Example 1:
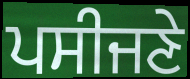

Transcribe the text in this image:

ਪਸੀਜਣੇ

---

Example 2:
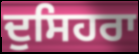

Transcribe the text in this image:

ਦੁਸਿਹਰਾ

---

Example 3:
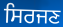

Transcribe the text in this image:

ਸਿਰਜਣ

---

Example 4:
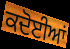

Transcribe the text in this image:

ਕਦੋਈਆਂ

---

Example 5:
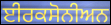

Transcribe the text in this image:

ਈਰਕਸੋਨੀਅਨ